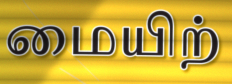
மையிற்